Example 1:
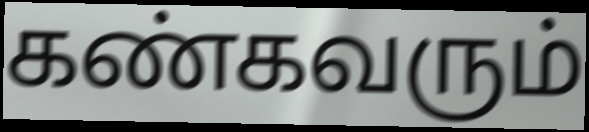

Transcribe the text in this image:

கண்கவரும்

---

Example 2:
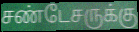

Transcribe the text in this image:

சண்டேசருக்கு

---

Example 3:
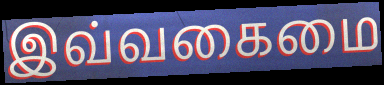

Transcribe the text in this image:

இவ்வகைமை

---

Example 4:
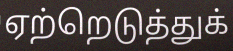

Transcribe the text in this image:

ஏற்றெடுத்துக்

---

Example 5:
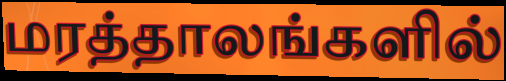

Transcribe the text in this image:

மரத்தாலங்களில்